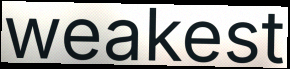
weakest